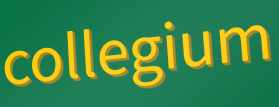
collegium